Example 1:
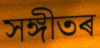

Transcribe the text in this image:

সঙ্গীতৰ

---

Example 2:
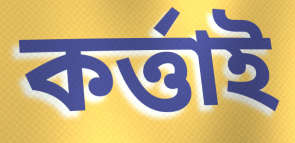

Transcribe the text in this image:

কৰ্ত্তাই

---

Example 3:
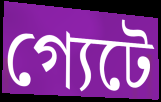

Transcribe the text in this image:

গ্যেটে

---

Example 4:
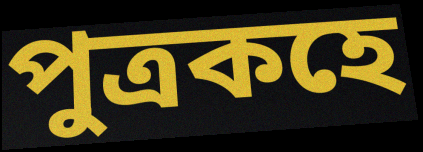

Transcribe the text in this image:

পুত্ৰকহে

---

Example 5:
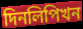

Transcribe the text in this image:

দিনলিপিখন